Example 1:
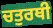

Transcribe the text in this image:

ਚਤੁਰਥੀ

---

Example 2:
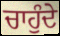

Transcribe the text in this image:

ਚਾਹੁੰਦੇ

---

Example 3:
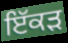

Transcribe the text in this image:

ਇੱਕੜ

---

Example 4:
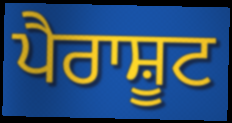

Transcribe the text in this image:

ਪੈਰਾਸ਼ੂਟ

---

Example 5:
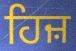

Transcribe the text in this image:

ਹਿਜ਼